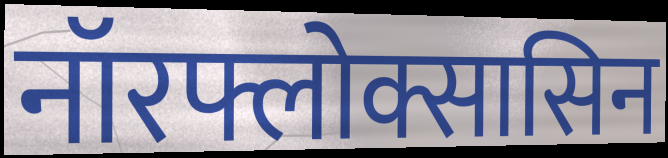
नॉरफ्लोक्सासिन